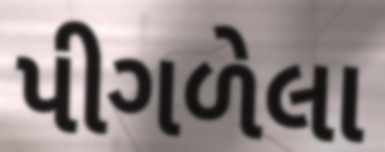
પીગળેલા